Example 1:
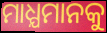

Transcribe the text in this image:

ମାଧ୍ଯମାନକୁ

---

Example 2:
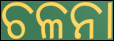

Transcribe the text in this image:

ଚଳନା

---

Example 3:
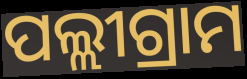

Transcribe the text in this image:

ପଲ୍ଲୀଗ୍ରାମ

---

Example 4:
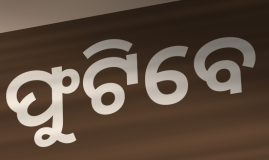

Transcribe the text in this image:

ଫୁଟିବେ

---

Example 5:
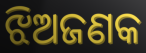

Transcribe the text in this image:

ଝିଅଜଣକ